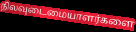
நிலவுடைமையாளர்களை